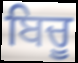
ਬਿਚੂ